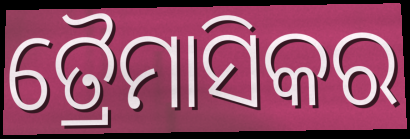
ତ୍ରୈମାସିକର